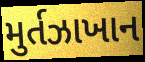
મુર્તઝાખાન